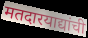
मतदारयाद्यांची